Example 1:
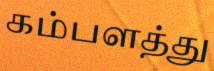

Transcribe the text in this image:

கம்பளத்து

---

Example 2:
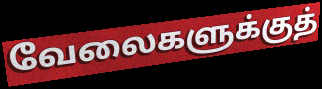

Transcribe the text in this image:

வேலைகளுக்குத்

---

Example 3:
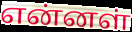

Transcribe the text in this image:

என்னள்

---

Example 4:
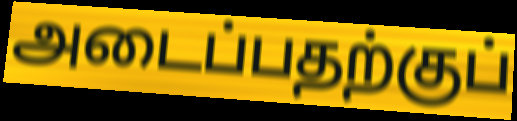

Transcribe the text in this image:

அடைப்பதற்குப்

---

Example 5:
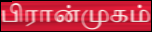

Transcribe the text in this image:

பிரான்முகம்